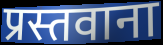
प्रस्तवाना